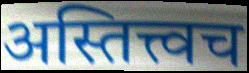
अस्तित्त्वच